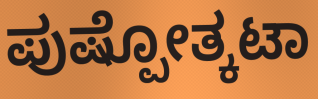
ಪುಷ್ಪೋತ್ಕಟಾ